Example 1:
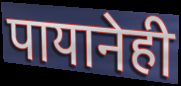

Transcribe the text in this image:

पायानेही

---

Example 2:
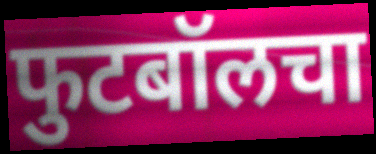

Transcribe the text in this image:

फुटबॉलचा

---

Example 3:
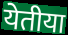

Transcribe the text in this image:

येतीया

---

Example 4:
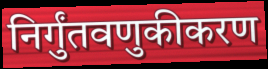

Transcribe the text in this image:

निर्गुंतवणुकीकरण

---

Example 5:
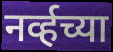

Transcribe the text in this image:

नर्व्हच्या